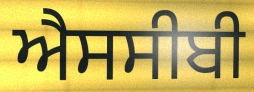
ਐਸਸੀਬੀ